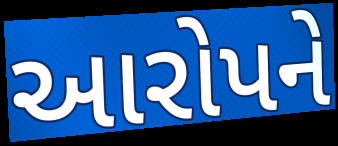
આરોપને